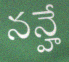
నన్హే